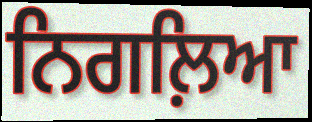
ਨਿਗਲ਼ਿਆ